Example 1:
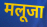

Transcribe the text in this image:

मलूजा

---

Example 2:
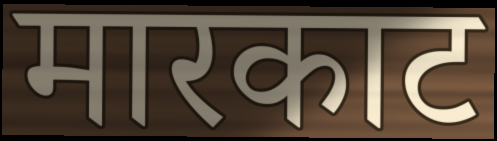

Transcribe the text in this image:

मारकाट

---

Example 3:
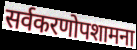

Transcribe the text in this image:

सर्वकरणोपशामना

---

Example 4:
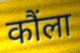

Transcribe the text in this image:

कौंला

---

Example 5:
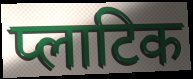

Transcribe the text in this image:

प्लाटिक